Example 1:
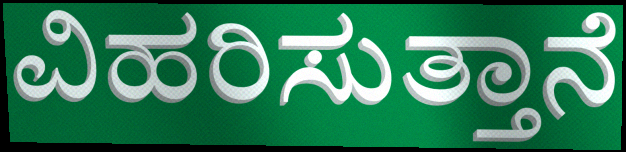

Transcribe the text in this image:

ವಿಹರಿಸುತ್ತಾನೆ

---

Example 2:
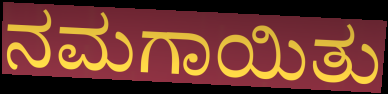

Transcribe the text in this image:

ನಮಗಾಯಿತು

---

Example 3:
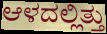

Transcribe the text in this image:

ಆಳದಲ್ಲಿತ್ತು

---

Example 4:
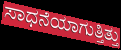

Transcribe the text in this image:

ಸಾಧನೆಯಾಗುತ್ತಿತ್ತು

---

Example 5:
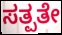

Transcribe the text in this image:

ಸತ್ಪತೇ